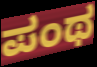
ಪಂಥ